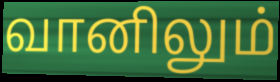
வானிலும்